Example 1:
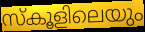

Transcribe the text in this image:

സ്കൂളിലെയും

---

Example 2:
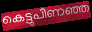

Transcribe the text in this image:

കെട്ടുപിണഞ്ഞ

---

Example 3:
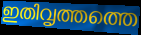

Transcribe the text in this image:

ഇതിവൃത്തത്തെ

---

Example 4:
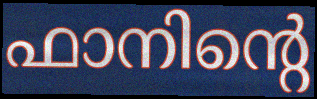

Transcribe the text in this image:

ഫാനിന്റെ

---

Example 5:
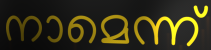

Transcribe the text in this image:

നാമെന്ന്